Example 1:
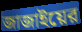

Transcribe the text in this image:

জাজাইয়ের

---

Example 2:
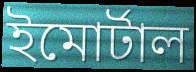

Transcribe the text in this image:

ইমোর্টাল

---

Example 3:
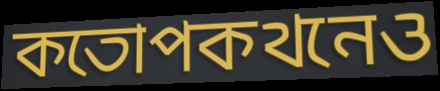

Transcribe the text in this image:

কতোপকথনেও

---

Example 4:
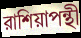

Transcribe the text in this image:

রাশিয়াপন্থী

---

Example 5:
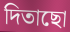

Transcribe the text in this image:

দিতাছো